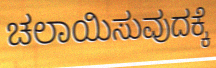
ಚಲಾಯಿಸುವುದಕ್ಕೆ